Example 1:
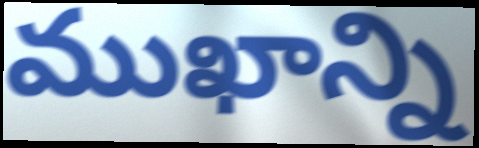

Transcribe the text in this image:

ముఖాన్ని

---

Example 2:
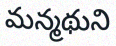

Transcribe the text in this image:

మన్మథుని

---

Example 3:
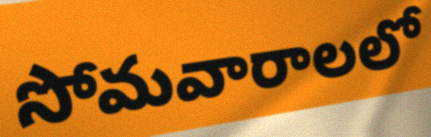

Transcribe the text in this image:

సోమవారాలలో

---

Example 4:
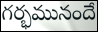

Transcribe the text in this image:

గర్భమునందే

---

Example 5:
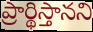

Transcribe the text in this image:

ప్రార్థిస్తానని